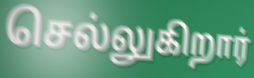
செல்லுகிறார்